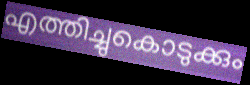
എത്തിച്ചുകൊടുക്കും